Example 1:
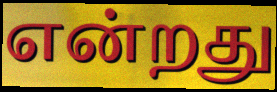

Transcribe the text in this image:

என்றது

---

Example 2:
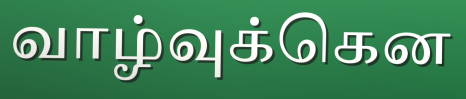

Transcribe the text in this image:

வாழ்வுக்கென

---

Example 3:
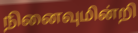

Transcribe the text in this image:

நினைவுமின்றி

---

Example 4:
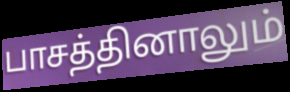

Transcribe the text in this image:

பாசத்தினாலும்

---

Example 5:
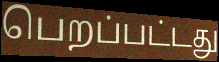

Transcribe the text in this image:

பெறப்பட்டது